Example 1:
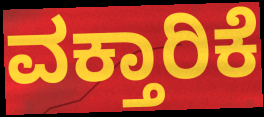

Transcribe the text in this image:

ವಕ್ತಾರಿಕೆ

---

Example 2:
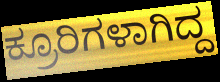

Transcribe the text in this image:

ಕ್ರೂರಿಗಳಾಗಿದ್ದ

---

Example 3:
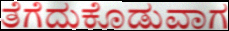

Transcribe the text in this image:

ತೆಗೆದುಕೊಡುವಾಗ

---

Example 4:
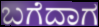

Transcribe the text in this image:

ಬಗೆದಾಗ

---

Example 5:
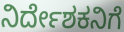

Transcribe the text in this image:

ನಿರ್ದೇಶಕನಿಗೆ